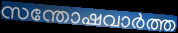
സന്തോഷവാർത്ത